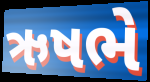
ઋષભે